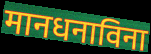
मानधनाविना